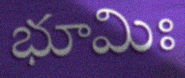
భూమిః